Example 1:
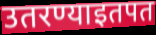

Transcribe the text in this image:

उतरण्याइतपत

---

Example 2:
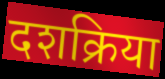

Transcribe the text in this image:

दशक्रिया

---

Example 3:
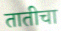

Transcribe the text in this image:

तातीचा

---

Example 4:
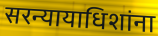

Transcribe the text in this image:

सरन्यायाधिशांना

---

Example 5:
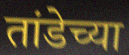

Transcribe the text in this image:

तांडेच्या